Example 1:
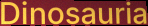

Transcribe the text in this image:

Dinosauria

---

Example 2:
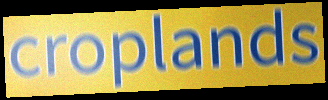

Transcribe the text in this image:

croplands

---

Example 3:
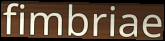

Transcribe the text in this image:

fimbriae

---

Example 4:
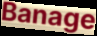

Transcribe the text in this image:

Banage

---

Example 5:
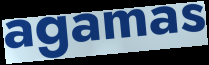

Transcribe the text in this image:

agamas